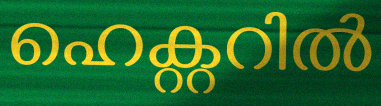
ഹെക്റ്ററിൽ